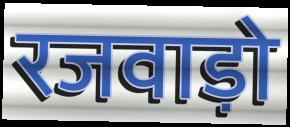
रजवाड़ो